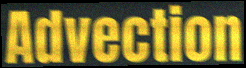
Advection